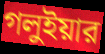
গলুইয়ার